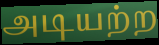
அடியற்ற